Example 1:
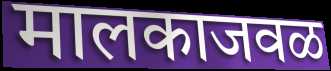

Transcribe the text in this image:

मालकाजवळ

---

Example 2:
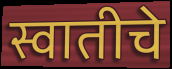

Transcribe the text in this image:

स्वातीचे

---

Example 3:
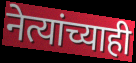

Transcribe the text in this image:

नेत्यांच्याही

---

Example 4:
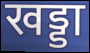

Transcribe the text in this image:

खड्डा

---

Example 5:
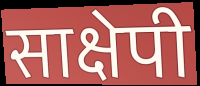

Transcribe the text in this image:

साक्षेपी